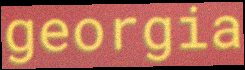
georgia